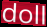
doll